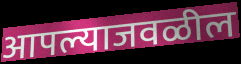
आपल्याजवळील